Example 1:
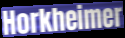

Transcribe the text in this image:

Horkheimer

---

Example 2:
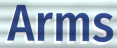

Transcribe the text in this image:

Arms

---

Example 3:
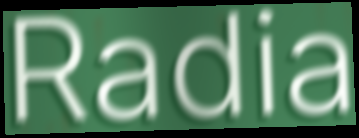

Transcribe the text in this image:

Radia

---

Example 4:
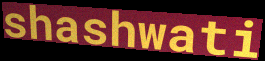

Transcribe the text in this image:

shashwati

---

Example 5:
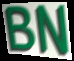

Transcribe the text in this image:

BN